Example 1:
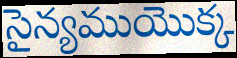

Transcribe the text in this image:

సైన్యముయొక్క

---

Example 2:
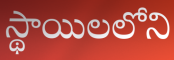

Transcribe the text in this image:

స్థాయిలలోని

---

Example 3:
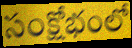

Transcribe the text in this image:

సంక్షోభంలో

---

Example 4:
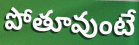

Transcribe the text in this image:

పోతూవుంటే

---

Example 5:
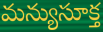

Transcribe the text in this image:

మన్యుసూక్త